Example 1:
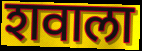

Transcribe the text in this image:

शवाला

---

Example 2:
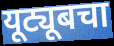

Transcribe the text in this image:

यूट्यूबचा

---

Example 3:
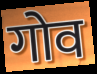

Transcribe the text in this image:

गोव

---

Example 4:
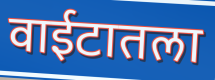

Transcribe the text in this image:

वाईटातला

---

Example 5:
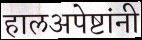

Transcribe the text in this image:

हालअपेष्टांनी